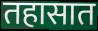
तहासात